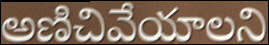
అణిచివేయాలని